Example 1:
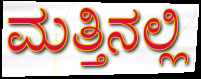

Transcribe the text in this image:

ಮತ್ತಿನಲ್ಲಿ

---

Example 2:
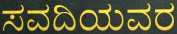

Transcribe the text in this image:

ಸವದಿಯವರ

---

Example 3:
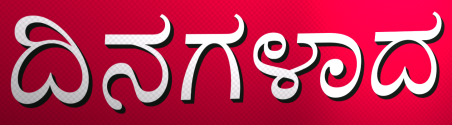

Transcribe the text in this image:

ದಿನಗಳಾದ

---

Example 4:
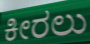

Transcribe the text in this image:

ಕೀರಲು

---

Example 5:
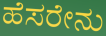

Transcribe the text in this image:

ಹೆಸರೇನು